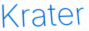
Krater